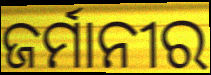
ଜର୍ମାନୀର